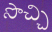
సొచ్చి